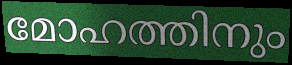
മോഹത്തിനും